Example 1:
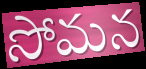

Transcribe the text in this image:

సోమన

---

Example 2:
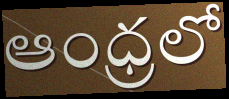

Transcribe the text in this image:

ఆంధ్రలో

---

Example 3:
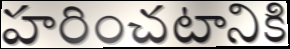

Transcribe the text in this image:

హరించటానికి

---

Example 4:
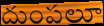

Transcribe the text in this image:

దుంపలూ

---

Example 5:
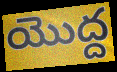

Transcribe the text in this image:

యొద్ద